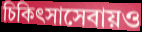
চিকিৎসাসেবায়ও